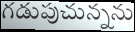
గడుపుచున్నను